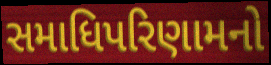
સમાધિપરિણામનો